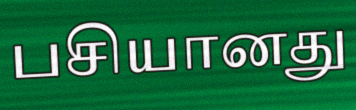
பசியானது